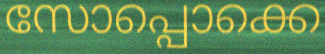
സോപ്പൊക്കെ